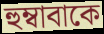
হুম্বাবাকে